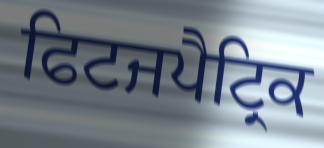
ਫਿਟਜਪੈਟ੍ਰਿਕ